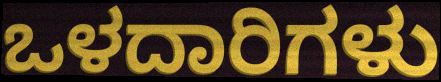
ಒಳದಾರಿಗಳು